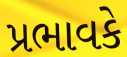
પ્રભાવકે